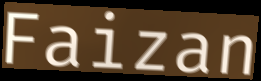
Faizan